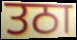
उठा